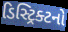
ડિસ્ટ્રિક્ટનો